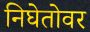
निघेतोवर